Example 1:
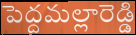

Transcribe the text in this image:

పెద్దమల్లారెడ్డి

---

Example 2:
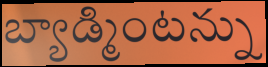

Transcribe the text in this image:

బ్యాడ్మింటన్ను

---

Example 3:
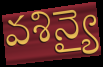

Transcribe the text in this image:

వశిన్యై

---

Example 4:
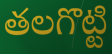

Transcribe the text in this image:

తలగొట్టి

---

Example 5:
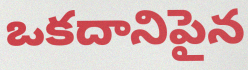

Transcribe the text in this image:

ఒకదానిపైన